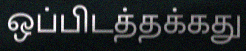
ஒப்பிடத்தக்கது